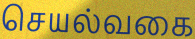
செயல்வகை